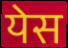
येस